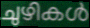
ചുഴികൾ